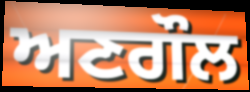
ਅਣਗੌਲ